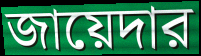
জায়েদার